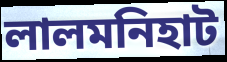
লালমনিহাট